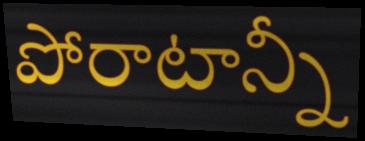
పోరాటాన్నీ